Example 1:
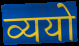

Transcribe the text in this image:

व्ययो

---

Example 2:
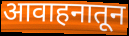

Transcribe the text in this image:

आवाहनातून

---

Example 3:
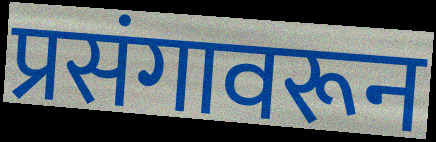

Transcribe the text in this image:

प्रसंगावरून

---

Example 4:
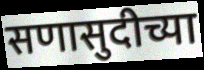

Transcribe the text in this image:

सणासुदीच्या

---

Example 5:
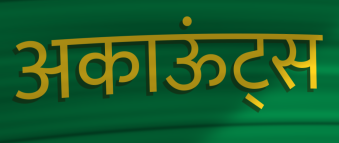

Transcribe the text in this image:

अकाऊंट्स